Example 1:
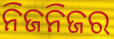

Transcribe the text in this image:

ନିଜନିଜର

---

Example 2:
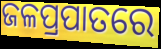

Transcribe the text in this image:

ଜଳପ୍ରପାତରେ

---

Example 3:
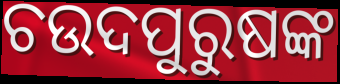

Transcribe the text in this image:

ଚଉଦପୁରୁଷଙ୍କ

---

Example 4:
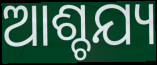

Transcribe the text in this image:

ଆଶ୍ଚଯ୍ୟ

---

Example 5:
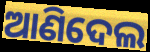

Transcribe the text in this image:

ଆଣିଦେଲ